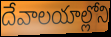
దేవాలయాల్లోని